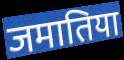
जमातिया